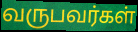
வருபவர்கள்